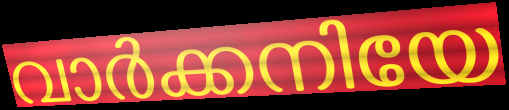
വാർക്കനിയേ